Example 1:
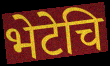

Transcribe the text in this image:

भेटेचि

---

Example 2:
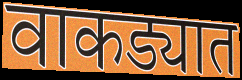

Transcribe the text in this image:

वाकड्यात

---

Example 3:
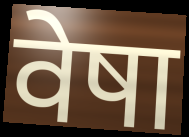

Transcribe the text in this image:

वेषा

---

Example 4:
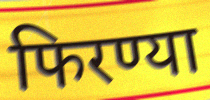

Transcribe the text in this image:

फिरण्या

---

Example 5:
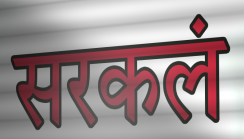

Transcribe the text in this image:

सरकलं